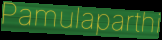
Pamulaparthi